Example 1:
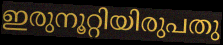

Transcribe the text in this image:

ഇരുനൂറ്റിയിരുപതു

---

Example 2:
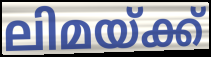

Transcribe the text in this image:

ലിമയ്ക്ക്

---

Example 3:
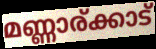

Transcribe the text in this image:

മണ്ണാര്ക്കാട്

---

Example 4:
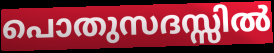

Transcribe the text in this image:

പൊതുസദസ്സിൽ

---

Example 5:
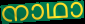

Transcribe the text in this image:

നാഥാ